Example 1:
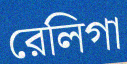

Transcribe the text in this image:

রেলিগা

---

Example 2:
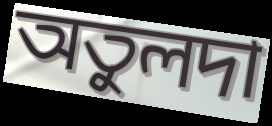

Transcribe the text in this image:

অতুলদা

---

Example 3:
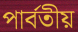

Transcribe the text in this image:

পার্বতীয়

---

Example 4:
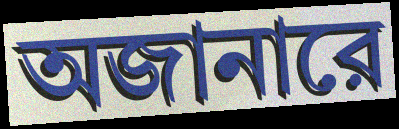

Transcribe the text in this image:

অজানারে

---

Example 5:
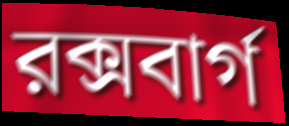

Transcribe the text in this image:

রক্সবার্গ